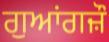
ਗੁਆਂਗਜ਼ੌ